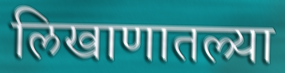
लिखाणातल्या